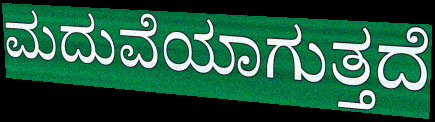
ಮದುವೆಯಾಗುತ್ತದೆ